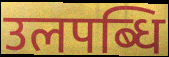
उलपब्धि